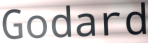
Godard